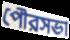
পৌরসভা